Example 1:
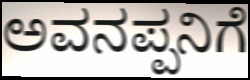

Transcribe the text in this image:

ಅವನಪ್ಪನಿಗೆ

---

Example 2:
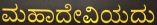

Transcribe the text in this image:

ಮಹಾದೇವಿಯದು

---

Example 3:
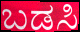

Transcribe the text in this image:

ಬಡಸಿ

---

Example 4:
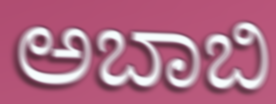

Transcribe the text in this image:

ಅಬಾಬಿ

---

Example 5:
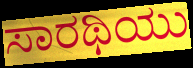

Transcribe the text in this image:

ಸಾರಥಿಯು